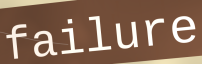
failure